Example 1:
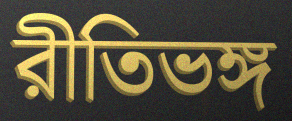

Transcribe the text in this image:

রীতিভঙ্গ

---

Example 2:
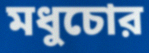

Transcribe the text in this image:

মধুচোর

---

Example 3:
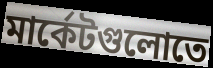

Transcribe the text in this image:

মার্কেটগুলোতে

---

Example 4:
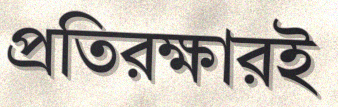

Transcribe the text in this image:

প্রতিরক্ষারই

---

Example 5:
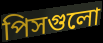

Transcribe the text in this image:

পিসগুলো